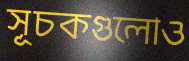
সূচকগুলোও